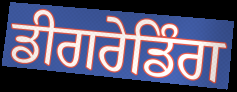
ਡੀਗਰੇਡਿੰਗ